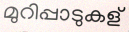
മുറിപ്പാടുകള്